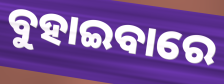
ବୁହାଇବାରେ